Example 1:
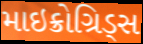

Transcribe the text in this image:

માઇક્રોગ્રિડ્સ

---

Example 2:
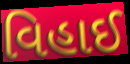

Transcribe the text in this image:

વિહાઈ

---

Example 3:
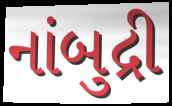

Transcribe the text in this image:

નાંબુદ્રી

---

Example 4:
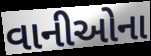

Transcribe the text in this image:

વાનીઓના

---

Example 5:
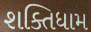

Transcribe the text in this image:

શક્તિધામ